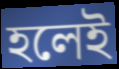
হলেই